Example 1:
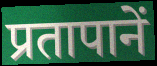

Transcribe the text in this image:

प्रतापानें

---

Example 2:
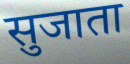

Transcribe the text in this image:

सुजाता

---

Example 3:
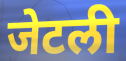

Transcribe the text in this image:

जेटली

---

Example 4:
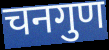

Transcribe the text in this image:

चनगुण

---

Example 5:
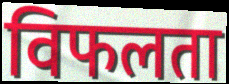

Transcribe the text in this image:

विफलता